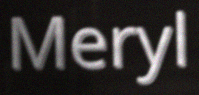
Meryl